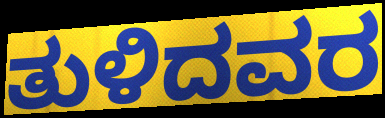
ತುಳಿದವರ